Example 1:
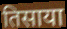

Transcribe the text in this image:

तिसाया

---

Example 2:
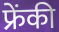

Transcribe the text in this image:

फ्रेंकी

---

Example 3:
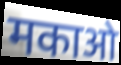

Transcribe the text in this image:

मकाओ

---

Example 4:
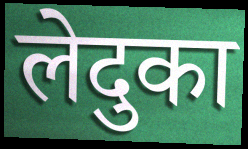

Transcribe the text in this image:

लेदुका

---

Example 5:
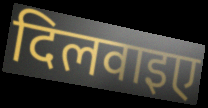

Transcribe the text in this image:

दिलवाइए